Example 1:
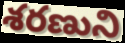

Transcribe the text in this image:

శరణుని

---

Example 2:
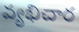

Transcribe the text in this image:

వ్యభిచార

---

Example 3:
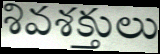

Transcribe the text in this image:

శివశక్తులు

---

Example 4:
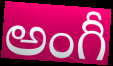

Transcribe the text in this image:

అంగీ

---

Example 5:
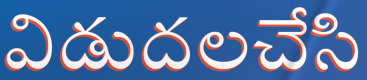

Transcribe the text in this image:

విడుదలచేసి